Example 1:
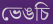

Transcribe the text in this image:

ভেঙচি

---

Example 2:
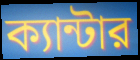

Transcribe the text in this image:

ক্যান্টার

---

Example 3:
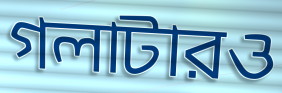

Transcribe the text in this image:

গলাটারও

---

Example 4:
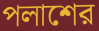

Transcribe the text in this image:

পলাশের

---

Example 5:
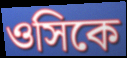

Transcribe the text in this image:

ওসিকে